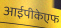
आईपीकेएफ